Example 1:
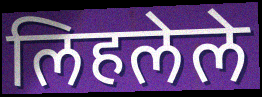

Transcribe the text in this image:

लिहलेले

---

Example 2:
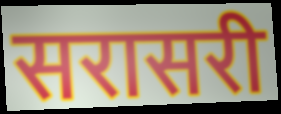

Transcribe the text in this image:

सरासरी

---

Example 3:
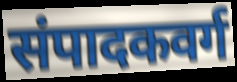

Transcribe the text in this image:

संपादकवर्ग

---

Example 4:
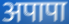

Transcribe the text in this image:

अपापा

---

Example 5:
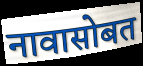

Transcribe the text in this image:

नावासोबत